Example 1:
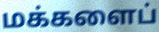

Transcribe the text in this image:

மக்களைப்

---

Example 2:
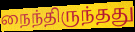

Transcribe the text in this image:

நைந்திருந்தது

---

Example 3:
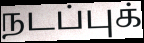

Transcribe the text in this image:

நடப்புக்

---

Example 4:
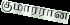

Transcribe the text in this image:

குமாரரான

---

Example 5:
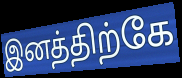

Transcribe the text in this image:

இனத்திற்கே